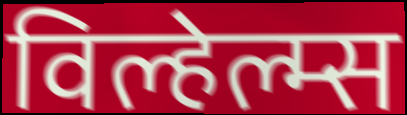
विल्हेल्म्स